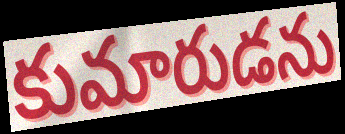
కుమారుడను